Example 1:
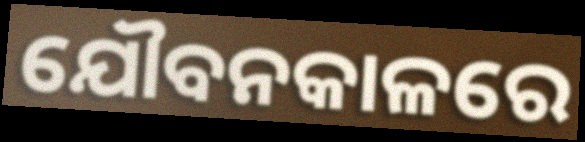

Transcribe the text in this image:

ଯୌବନକାଳରେ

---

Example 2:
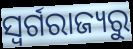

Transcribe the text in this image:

ସ୍ବର୍ଗରାଜ୍ୟରୁ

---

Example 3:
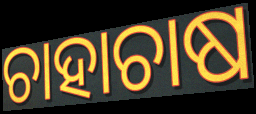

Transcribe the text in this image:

ଚାହାଚାଷ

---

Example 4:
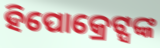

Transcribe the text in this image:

ହିପୋକ୍ରେଟ୍ସଙ୍କ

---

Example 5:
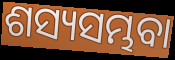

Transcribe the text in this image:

ଶସ୍ୟସମ୍ଭବା